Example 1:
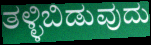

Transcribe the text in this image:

ತಳ್ಳಿಬಿಡುವುದು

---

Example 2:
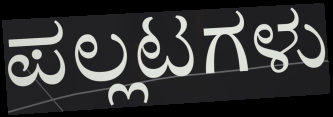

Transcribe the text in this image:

ಪಲ್ಲಟಗಳು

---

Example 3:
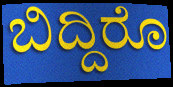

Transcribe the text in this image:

ಬಿದ್ದಿರೊ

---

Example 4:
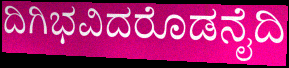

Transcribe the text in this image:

ದಿಗಿಭವಿದರೊಡನೈದಿ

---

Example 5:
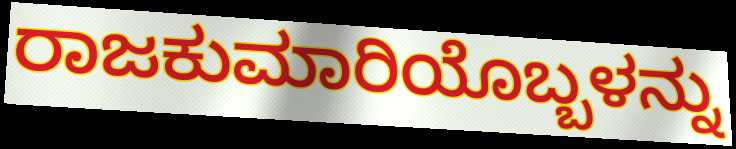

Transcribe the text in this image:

ರಾಜಕುಮಾರಿಯೊಬ್ಬಳನ್ನು